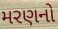
મરણનો